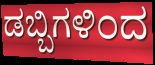
ಡಬ್ಬಿಗಳಿಂದ